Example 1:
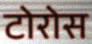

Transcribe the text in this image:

टोरोस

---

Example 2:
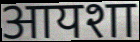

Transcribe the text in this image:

आयशा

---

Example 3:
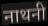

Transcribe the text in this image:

नाथनी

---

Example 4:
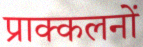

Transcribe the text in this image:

प्राक्कलनों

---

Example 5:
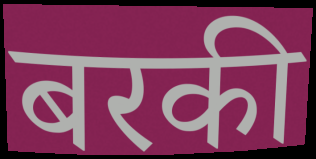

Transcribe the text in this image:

बरकी